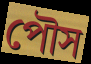
পৌস